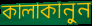
কালাকানুন